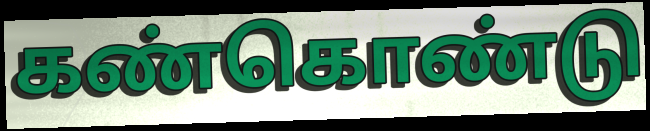
கண்கொண்டு